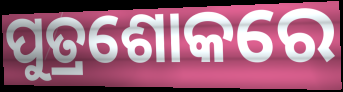
ପୁତ୍ରଶୋକରେ